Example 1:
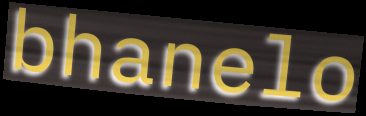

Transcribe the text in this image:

bhanelo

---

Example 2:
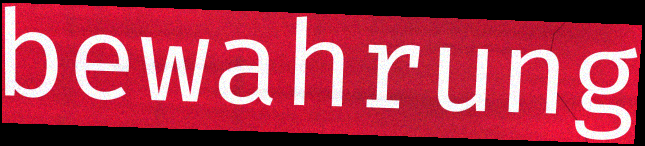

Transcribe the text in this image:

bewahrung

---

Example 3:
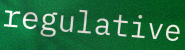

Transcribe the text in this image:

regulative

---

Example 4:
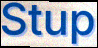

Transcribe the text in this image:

Stup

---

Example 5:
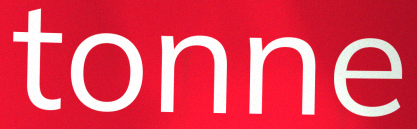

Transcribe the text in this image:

tonne